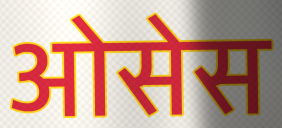
ओसेस